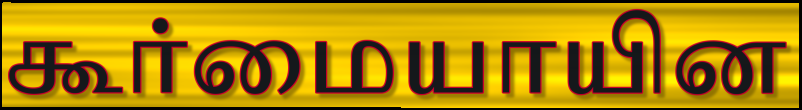
கூர்மையாயின